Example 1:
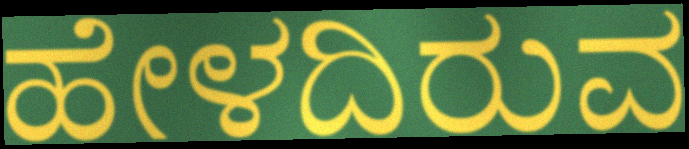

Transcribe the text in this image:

ಹೇಳದಿರುವ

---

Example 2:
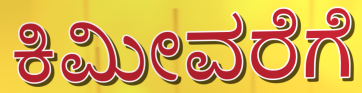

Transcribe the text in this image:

ಕಿಮೀವರೆಗೆ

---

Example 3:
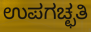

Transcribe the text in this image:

ಉಪಗಚ್ಛತಿ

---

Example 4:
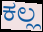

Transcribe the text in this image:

ಕಲ್ಲ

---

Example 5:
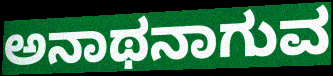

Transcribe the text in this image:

ಅನಾಥನಾಗುವ